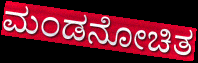
ಮಂಡನೋಚಿತ